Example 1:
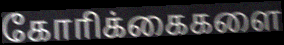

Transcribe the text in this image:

கோரிக்கைகளை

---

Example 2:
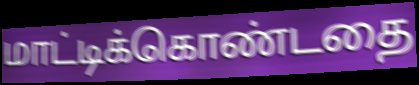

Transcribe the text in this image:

மாட்டிக்கொண்டதை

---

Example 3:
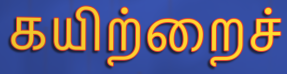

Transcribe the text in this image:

கயிற்றைச்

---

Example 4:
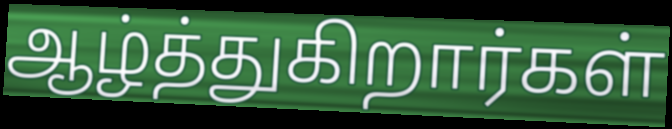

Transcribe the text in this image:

ஆழ்த்துகிறார்கள்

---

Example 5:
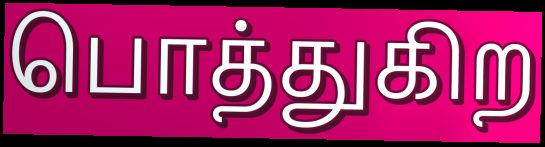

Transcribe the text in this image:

பொத்துகிற